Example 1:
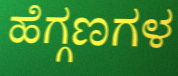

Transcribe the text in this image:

ಹೆಗ್ಗಣಗಳ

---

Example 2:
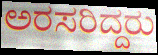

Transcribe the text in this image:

ಅರಸರಿದ್ದರು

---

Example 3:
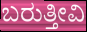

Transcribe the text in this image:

ಬರುತ್ತೀವಿ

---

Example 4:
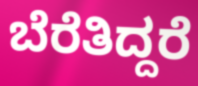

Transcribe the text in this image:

ಬೆರೆತಿದ್ದರೆ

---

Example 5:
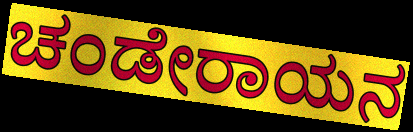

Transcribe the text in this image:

ಚಂಡೇರಾಯನ